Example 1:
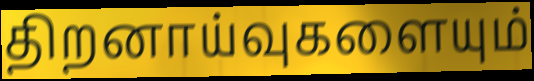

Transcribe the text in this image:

திறனாய்வுகளையும்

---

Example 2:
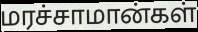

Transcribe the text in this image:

மரச்சாமான்கள்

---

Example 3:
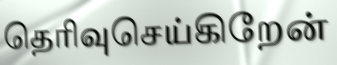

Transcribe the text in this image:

தெரிவுசெய்கிறேன்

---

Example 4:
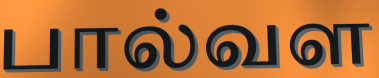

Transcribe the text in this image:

பால்வள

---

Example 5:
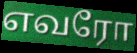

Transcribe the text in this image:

எவரோ